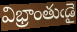
విభ్రాంతుఁడై